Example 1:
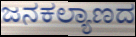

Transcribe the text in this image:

ಜನಕಲ್ಯಾಣದ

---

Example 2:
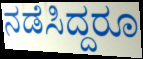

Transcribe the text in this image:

ನಡೆಸಿದ್ದರೂ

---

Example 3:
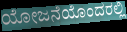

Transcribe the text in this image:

ಯೋಜನೆಯೊಂದರಲ್ಲಿ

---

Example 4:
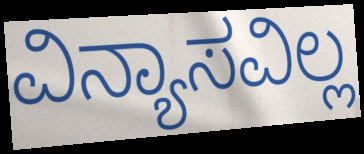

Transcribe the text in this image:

ವಿನ್ಯಾಸವಿಲ್ಲ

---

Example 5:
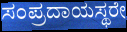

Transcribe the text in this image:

ಸಂಪ್ರದಾಯಸ್ಥರೇ